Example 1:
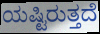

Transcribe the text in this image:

ಯಷ್ಟಿರುತ್ತದೆ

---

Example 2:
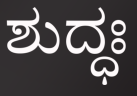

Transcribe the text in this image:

ಶುದ್ಧಃ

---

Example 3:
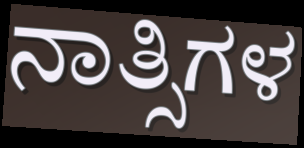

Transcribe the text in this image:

ನಾತ್ಸಿಗಳ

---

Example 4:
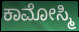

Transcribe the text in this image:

ಕಾಮೋಸ್ಮಿ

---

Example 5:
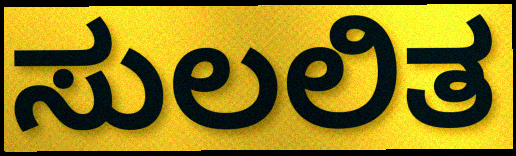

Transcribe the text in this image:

ಸುಲಲಿತ